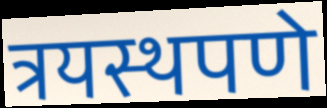
त्रयस्थपणे